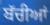
ਬੱਚੀਆਂ